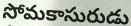
సోమకాసురుడు